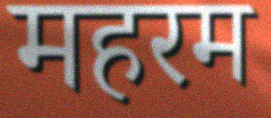
महरम